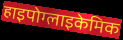
हाइपोग्लाइकेमिक